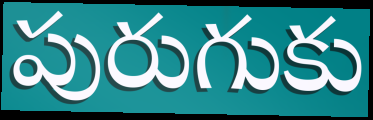
పురుగుకు